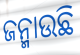
ଜନ୍ମାଉଛି